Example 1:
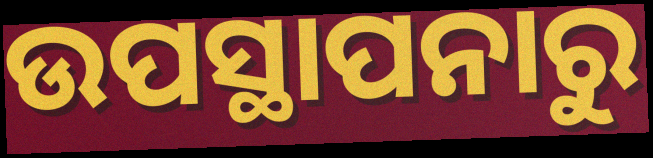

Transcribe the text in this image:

ଉପସ୍ଥାପନାରୁ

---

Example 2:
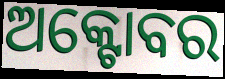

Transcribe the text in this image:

ଅକ୍ଟୋବର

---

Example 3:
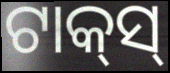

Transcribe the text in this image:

ଟାକ୍‍ସ୍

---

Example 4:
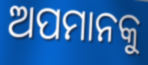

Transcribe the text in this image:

ଅପମାନକୁ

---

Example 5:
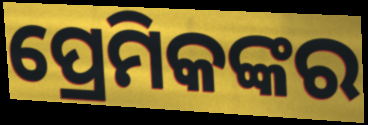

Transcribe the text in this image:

ପ୍ରେମିକଙ୍କର